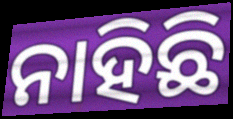
ନାହିଛି